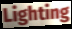
Lighting